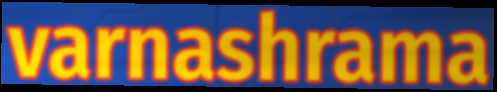
varnashrama